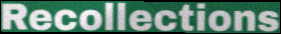
Recollections